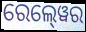
ରେଲ୍‍ୱେର